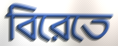
বিরেতে